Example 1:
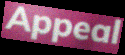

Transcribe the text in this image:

Appeal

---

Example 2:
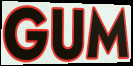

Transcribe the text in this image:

GUM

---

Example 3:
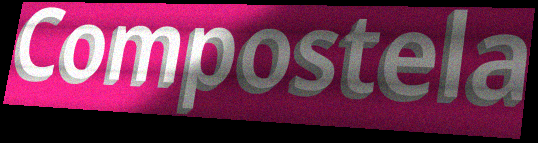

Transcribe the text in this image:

Compostela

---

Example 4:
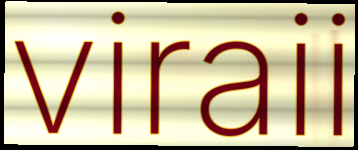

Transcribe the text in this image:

viraii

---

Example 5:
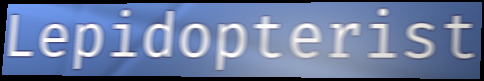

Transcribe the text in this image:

Lepidopterist